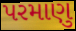
પરમાણુ